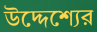
উদ্দেশ্যের